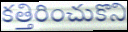
కత్తిరించుకొని